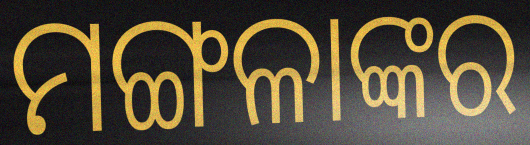
ମଙ୍ଗଳାଙ୍କର